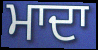
ਮਾਦਾ